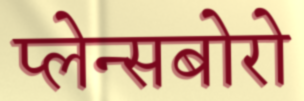
प्लेन्सबोरो